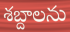
శబ్దాలను